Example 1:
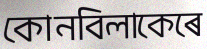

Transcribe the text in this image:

কোনবিলাকেৰে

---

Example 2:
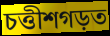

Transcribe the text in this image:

চত্তীশগড়ত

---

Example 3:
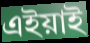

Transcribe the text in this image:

এইয়াই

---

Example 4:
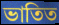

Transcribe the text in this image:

ভাতিত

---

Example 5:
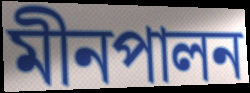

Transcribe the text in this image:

মীনপালন